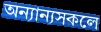
অন্যান্যসকলে